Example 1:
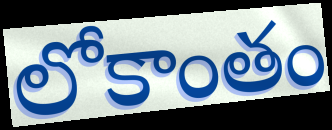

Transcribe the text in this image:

లోకాంతం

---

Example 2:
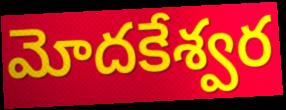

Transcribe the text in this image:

మోదకేశ్వర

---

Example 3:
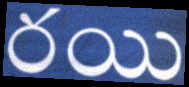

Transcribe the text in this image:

రయి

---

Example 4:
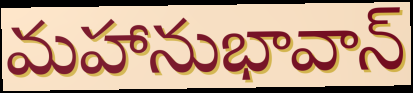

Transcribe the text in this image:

మహానుభావాన్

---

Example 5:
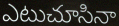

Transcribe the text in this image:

ఎటుచూసినా